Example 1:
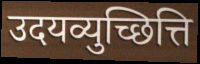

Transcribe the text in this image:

उदयव्युच्छित्ति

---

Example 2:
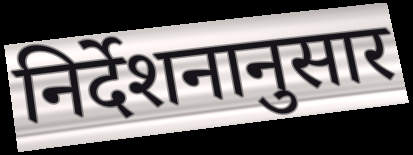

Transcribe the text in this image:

निर्देशनानुसार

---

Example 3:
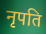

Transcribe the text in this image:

नृपति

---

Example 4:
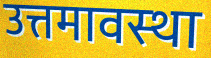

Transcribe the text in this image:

उत्तमावस्था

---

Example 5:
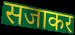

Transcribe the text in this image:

सजाकर